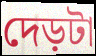
দেড়টা